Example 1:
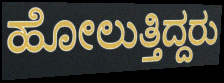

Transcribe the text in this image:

ಹೋಲುತ್ತಿದ್ದರು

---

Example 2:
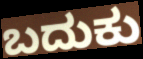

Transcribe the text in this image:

ಬದುಕು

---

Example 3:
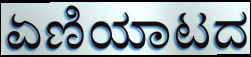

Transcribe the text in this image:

ಏಣಿಯಾಟದ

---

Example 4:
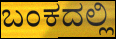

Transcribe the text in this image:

ಬಂಕದಲ್ಲಿ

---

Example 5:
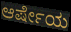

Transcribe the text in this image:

ಆರ್ಷೇಯ